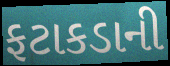
ફટાકડાની